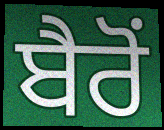
ਬੈਰੋਂ